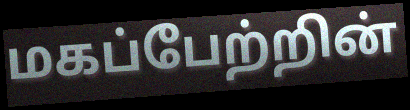
மகப்பேற்றின்